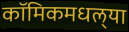
कॉमिकमधल्या